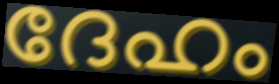
ദേഹം